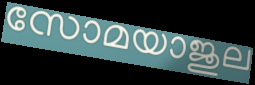
സോമയാജുല